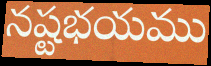
నష్టభయము